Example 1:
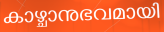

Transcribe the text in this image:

കാഴ്ചാനുഭവമായി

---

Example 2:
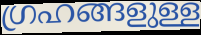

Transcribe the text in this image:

ഗ്രഹങ്ങളുള്ള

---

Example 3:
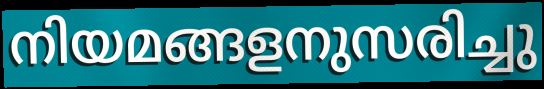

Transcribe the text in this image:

നിയമങ്ങളനുസരിച്ചു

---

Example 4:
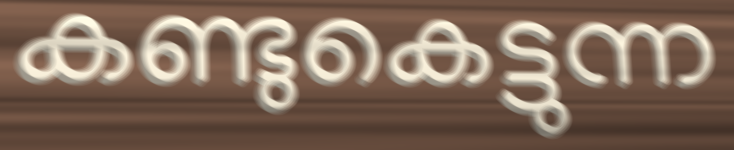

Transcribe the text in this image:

കണ്ടുകെട്ടുന്ന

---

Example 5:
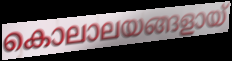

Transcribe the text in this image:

കൊലാലയങ്ങളായ്